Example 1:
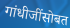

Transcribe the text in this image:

गांधीजींसोबत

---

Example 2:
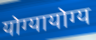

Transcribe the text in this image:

योग्यायोग्य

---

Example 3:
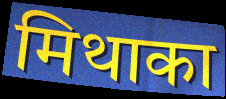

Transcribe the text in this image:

मिथाका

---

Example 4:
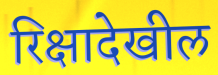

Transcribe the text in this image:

रिक्षादेखील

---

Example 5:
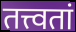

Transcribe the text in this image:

तत्त्वतां